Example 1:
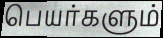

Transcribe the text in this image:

பெயர்களும்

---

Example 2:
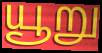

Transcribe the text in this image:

யூறு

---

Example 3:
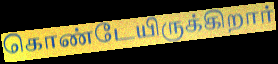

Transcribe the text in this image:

கொண்டேயிருக்கிறார்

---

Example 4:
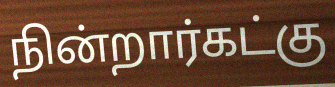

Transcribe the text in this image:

நின்றார்கட்கு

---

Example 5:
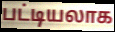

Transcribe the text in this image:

பட்டியலாக